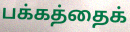
பக்கத்தைக்